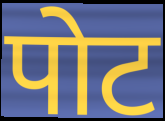
पोट